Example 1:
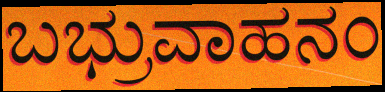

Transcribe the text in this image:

ಬಭ್ರುವಾಹನಂ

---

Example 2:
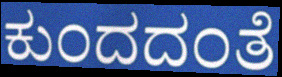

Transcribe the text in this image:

ಕುಂದದಂತೆ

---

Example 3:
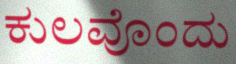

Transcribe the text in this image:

ಕುಲವೊಂದು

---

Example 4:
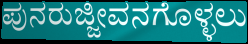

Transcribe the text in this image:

ಪುನರುಜ್ಜೀವನಗೊಳ್ಳಲು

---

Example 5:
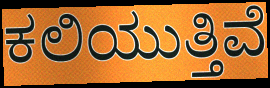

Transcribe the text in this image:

ಕಲಿಯುತ್ತಿವೆ